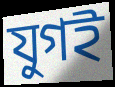
যুগই